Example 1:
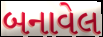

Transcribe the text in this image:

બનાવેલ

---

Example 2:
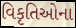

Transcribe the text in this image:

વિકૃતિઓના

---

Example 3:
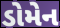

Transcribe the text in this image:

ડોમેન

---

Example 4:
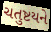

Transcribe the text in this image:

ચતુષ્ટયને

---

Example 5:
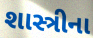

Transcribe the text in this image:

શાસ્ત્રીના